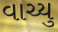
વાચ્યુ